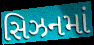
સિઝનમાં